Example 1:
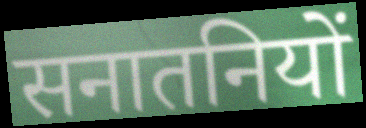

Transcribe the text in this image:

सनातनियों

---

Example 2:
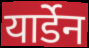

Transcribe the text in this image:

यार्डेन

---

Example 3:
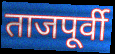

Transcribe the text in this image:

ताजपूर्वी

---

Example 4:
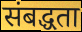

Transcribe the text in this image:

संबद्धता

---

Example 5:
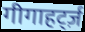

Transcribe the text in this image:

गीगाहर्ट्ज़